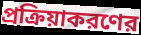
প্রক্রিয়াকরণের